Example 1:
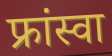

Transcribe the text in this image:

फ्रांस्वा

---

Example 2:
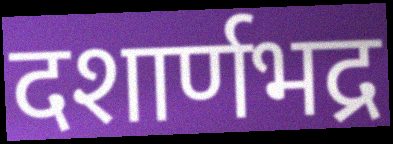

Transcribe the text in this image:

दशार्णभद्र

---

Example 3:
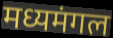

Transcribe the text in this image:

मध्यमंगल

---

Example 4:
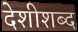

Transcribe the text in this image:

देशीशब्द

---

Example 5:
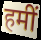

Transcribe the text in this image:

हमीं